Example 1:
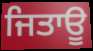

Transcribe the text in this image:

ਜਿਤਾਊ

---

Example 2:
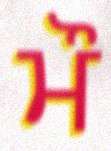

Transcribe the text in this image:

ਮੌ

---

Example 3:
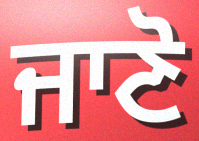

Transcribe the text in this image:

ਜਾਣੋ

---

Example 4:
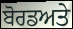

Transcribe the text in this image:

ਬੋਰਡਅਤੇ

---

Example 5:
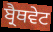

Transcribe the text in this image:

ਬ੍ਰੈਥਵੇਟ